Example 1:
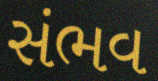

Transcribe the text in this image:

સંભવ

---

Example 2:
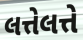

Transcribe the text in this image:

લત્તેલત્તે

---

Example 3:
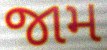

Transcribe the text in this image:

જામ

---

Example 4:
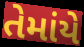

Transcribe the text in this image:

તેમાંયે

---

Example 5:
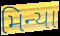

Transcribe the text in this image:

મિન્યા